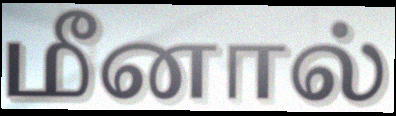
மீனால்